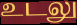
உடலு